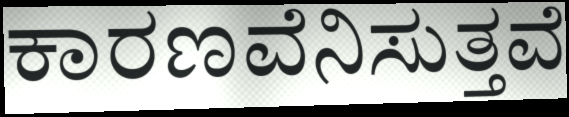
ಕಾರಣವೆನಿಸುತ್ತವೆ